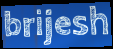
brijesh